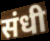
संधी